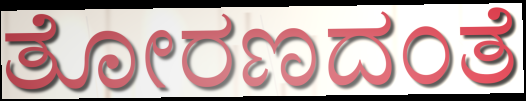
ತೋರಣದಂತೆ